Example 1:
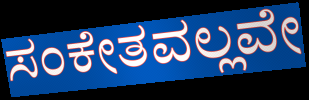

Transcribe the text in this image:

ಸಂಕೇತವಲ್ಲವೇ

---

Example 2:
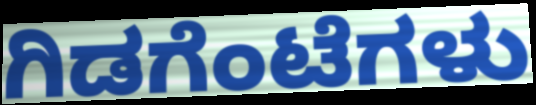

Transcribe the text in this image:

ಗಿಡಗೆಂಟೆಗಳು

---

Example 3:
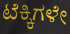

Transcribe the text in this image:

ಟೆಕ್ಕಿಗಳೇ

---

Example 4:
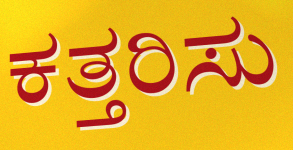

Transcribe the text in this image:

ಕತ್ತರಿಸು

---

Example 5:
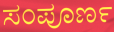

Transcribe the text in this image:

ಸಂಪೂರ್ಣ